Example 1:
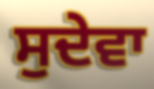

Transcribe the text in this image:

ਸੁਦੇਵਾ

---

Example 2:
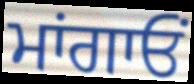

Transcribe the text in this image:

ਮਾਂਗਾਓਂ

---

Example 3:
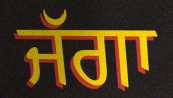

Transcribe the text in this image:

ਜੱਗਾ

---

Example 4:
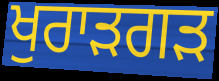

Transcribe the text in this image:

ਖੁਰਾੜਗੜ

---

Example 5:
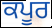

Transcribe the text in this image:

ਕਪੂਰ